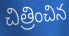
చిత్రించిన